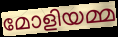
മോളിയമ്മ